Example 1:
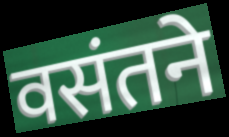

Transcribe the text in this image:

वसंतने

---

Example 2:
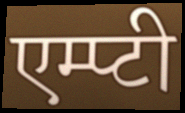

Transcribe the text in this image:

एम्प्टी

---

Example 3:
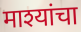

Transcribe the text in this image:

माश्यांचा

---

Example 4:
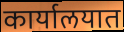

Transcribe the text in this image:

कार्यालयात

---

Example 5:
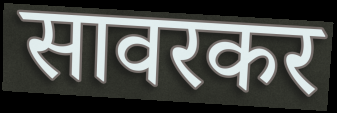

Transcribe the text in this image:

सावरकर